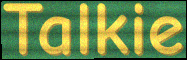
Talkie